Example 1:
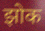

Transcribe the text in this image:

झोक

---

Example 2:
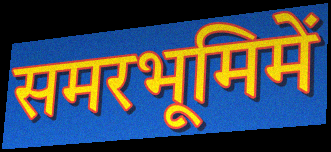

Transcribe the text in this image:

समरभूमिमें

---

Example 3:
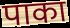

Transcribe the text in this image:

पाका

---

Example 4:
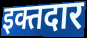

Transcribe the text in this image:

इक्तदार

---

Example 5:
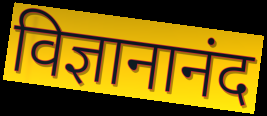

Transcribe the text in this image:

विज्ञानानंद